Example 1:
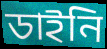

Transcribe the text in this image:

ডাইনি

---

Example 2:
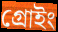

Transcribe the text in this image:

গ্রোইং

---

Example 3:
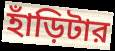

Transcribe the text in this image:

হাঁড়িটার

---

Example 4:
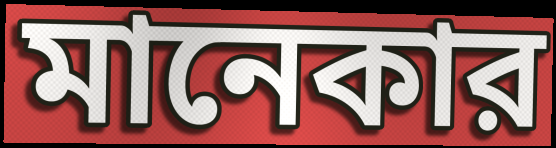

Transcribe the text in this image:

মানেকার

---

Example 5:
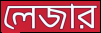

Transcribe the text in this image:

লেজার